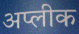
अप्लीक